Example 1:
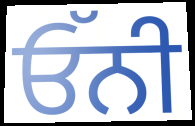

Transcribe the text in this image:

ਓੱਨੀ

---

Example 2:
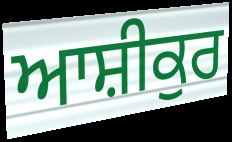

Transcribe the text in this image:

ਆਸ਼ੀਕੁਰ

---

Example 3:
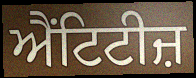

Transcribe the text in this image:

ਐਂਟਿਟੀਜ਼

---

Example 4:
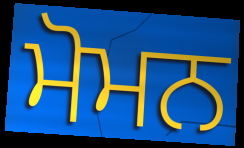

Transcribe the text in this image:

ਮੋਮਨ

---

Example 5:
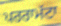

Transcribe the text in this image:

ਪਰਰਾਮੱਟਾ